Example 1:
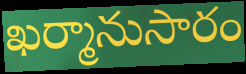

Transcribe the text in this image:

ఖర్మానుసారం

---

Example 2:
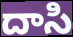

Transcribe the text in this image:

దాసి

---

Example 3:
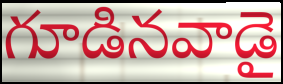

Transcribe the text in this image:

గూడినవాడై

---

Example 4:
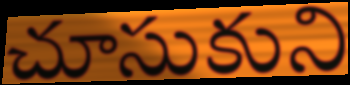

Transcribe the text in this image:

చూసుకుని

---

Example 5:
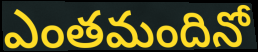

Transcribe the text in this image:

ఎంతమందినో